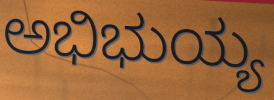
ಅಭಿಭುಯ್ಯ